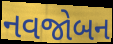
નવજોબન